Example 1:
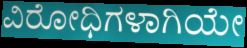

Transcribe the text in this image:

ವಿರೋಧಿಗಳಾಗಿಯೇ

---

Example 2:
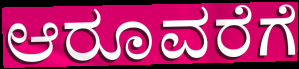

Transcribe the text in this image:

ಆರೂವರೆಗೆ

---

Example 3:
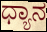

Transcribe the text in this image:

ಧ್ಯಾನ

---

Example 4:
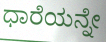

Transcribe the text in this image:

ಧಾರೆಯನ್ನೇ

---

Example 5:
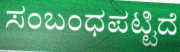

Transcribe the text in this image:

ಸಂಬಂಧಪಟ್ಟಿದೆ